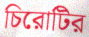
চিরোটির